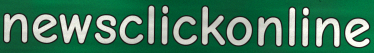
newsclickonline